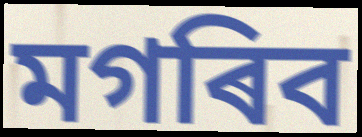
মগৰিব